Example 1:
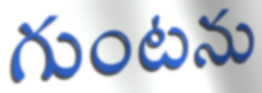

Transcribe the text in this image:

గుంటను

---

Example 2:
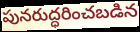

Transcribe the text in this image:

పునరుద్ధరించబడిన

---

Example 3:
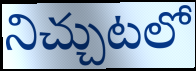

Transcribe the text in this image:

నిచ్చుటలో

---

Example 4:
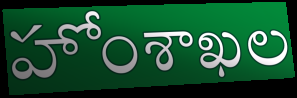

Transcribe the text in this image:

హోంశాఖల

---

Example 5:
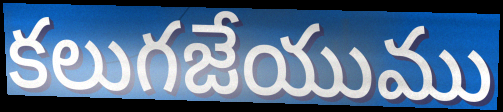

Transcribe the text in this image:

కలుగజేయుము